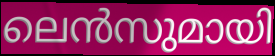
ലെൻസുമായി